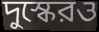
দুস্কেরও